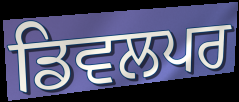
ਡਿਵਲਪਰ